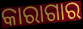
କାରାଗାର